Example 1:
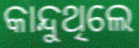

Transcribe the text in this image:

କାନ୍ଦୁଥିଲେ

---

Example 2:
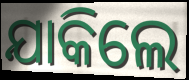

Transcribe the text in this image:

ଯାକିଲେ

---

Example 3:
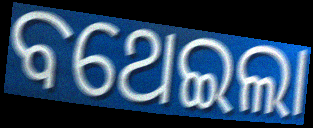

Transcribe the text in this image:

ବଥେଇଲା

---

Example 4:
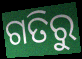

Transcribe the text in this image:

ଗତିରୁ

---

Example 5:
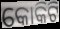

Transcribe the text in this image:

କୋକିଟି